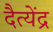
दैत्येंद्र